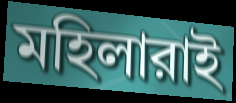
মহিলারাই